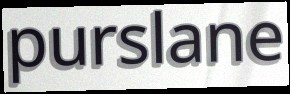
purslane